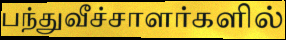
பந்துவீச்சாளர்களில்